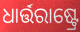
ଧାର୍ତ୍ତରାଷ୍ଟ୍ରେ